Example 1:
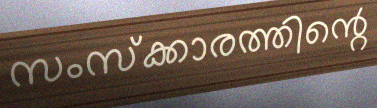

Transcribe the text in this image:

സംസ്ക്കാരത്തിന്റെ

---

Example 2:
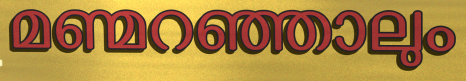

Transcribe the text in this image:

മണ്മറഞ്ഞാലും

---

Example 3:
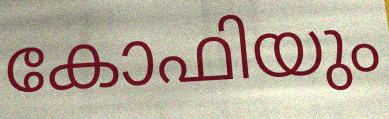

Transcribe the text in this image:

കോഫിയും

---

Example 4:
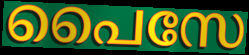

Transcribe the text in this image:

പൈസേ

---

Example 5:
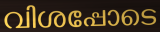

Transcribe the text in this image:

വിശപ്പോടെ